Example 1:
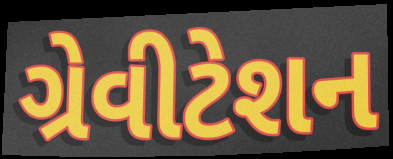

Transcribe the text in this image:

ગ્રેવીટેશન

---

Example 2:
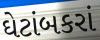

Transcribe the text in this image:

ઘેટાંબકરાં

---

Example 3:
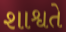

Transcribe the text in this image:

શાશ્વતે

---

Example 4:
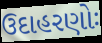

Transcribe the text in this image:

ઉદાહરણોઃ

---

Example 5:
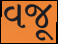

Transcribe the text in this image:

વજૂ